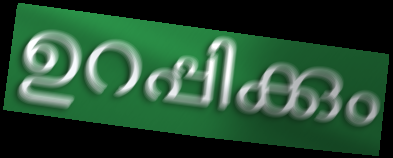
ഉറപ്പിക്കും